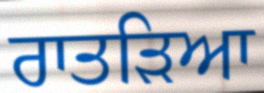
ਰਾਤੜਿਆ